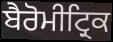
ਬੈਰੋਮੀਟ੍ਰਿਕ